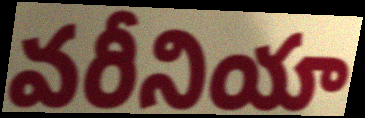
వరీనియా